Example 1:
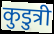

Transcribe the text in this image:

कुडुत्री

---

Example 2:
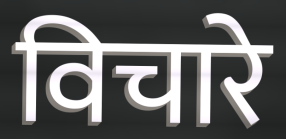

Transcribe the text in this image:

विचारे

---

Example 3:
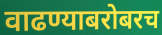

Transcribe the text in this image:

वाढण्याबरोबरच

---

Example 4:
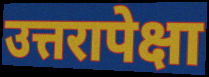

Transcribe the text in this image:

उत्तरापेक्षा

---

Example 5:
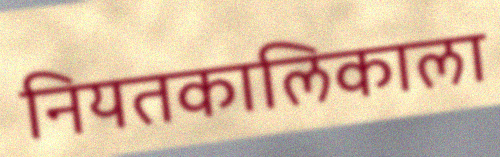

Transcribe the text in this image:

नियतकालिकाला